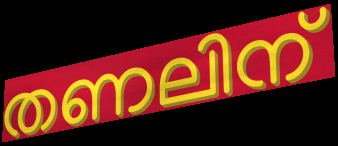
തണലിന്